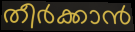
തീർക്കാൻ